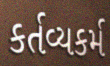
કર્તવ્યકર્મ